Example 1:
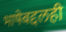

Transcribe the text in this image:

भाषेबद्दलही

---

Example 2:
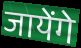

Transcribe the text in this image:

जायेंगे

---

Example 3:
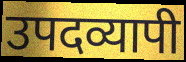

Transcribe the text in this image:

उपदव्यापी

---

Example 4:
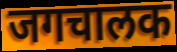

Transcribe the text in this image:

जगचालक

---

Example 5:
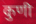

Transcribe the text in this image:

कुणी